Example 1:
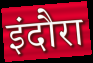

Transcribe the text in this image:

इंदौरा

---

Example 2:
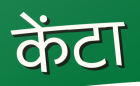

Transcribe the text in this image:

केंटा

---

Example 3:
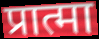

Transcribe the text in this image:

प्रात्मा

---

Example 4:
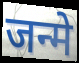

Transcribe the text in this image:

जन्मे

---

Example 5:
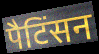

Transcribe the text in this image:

पैटिंसन